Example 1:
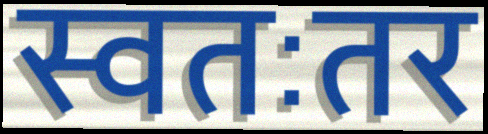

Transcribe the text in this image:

स्वतःतर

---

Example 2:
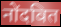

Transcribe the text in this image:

नोंदवित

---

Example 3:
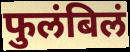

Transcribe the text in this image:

फुलंबिलं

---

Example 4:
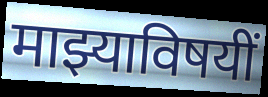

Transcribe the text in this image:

माझ्याविषयीं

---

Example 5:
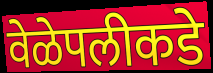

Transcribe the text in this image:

वेळेपलीकडे